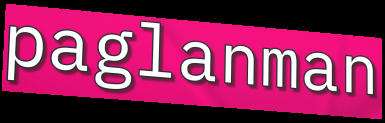
paglanman